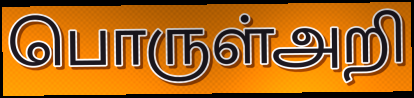
பொருள்அறி